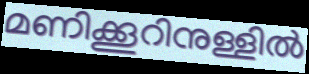
മണിക്കൂറിനുള്ളിൽ